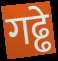
गढ्ढे